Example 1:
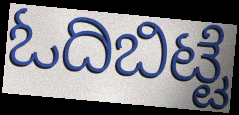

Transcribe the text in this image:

ಓದಿಬಿಟ್ಟೆ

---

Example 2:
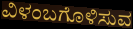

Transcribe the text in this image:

ವಿಳಂಬಗೊಳಿಸುವ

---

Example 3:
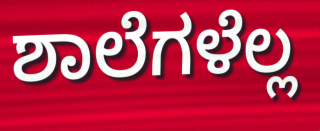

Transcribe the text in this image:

ಶಾಲೆಗಳೆಲ್ಲ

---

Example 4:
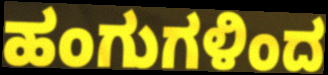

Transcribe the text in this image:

ಹಂಗುಗಳಿಂದ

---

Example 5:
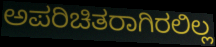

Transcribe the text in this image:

ಅಪರಿಚಿತರಾಗಿರಲಿಲ್ಲ